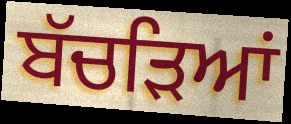
ਬੱਚੜਿਆਂ